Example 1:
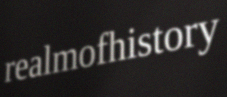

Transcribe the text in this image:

realmofhistory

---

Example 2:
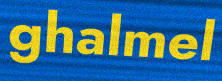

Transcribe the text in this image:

ghalmel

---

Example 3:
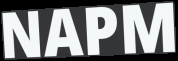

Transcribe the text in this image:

NAPM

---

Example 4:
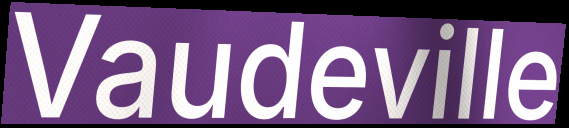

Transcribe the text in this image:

Vaudeville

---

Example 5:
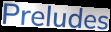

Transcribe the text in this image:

Preludes